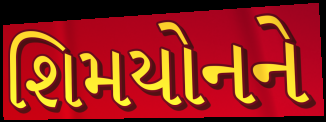
શિમયોનને